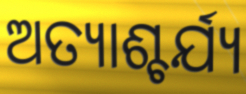
ଅତ୍ୟାଶ୍ଚର୍ଯ୍ୟ